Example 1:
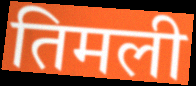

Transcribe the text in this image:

तिमली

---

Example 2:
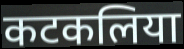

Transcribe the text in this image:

कटकलिया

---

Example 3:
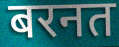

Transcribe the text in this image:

बरनत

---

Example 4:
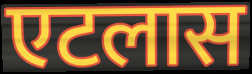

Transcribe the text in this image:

एटलास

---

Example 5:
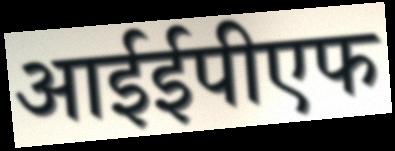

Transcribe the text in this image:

आईईपीएफ